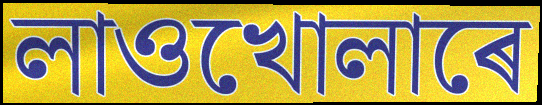
লাওখোলাৰে